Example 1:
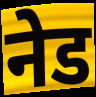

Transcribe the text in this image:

नेड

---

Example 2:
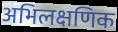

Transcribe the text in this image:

अभिलक्षणिक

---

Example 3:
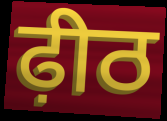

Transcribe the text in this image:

ढ़ीठ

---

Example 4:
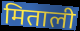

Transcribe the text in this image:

मिताली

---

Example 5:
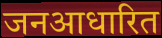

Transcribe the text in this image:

जनआधारित